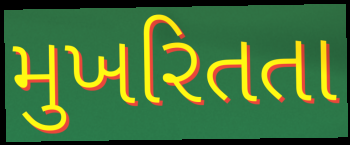
મુખરિતતા